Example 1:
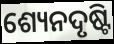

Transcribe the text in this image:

ଶ୍ୟେନଦୃଷ୍ଟି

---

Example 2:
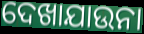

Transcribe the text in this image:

ଦେଖାଯାଉନା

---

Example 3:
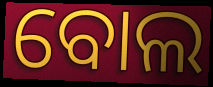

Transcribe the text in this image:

ବୋଲ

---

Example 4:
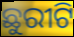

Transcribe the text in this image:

ଛୁରୀଟି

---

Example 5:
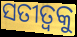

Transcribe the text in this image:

ସତୀତ୍ୱକୁ